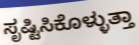
ಸೃಷ್ಟಿಸಿಕೊಳ್ಳುತ್ತಾ